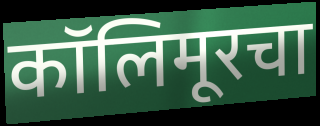
कॉलिमूरचा